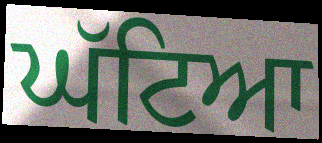
ਘੱਟਿਆ